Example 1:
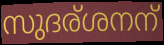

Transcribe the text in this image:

സുദര്ശനന്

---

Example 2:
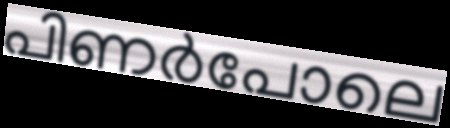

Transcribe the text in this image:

പിണർപോലെ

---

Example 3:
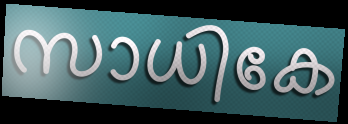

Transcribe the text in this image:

സാധികേ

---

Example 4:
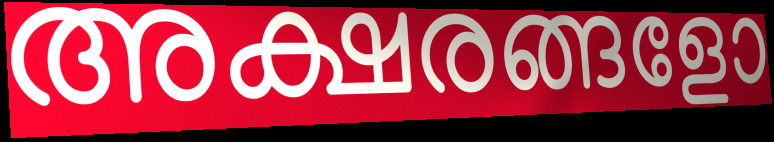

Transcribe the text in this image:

അക്ഷരങ്ങളോ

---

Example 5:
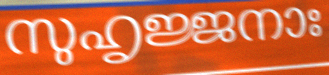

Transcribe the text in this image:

സുഹൃജ്ജനാഃ